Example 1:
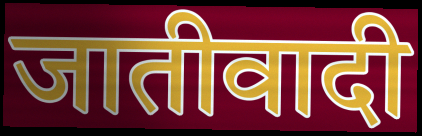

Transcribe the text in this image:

जातीवादी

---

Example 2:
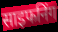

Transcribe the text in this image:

साइफनिंग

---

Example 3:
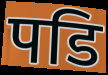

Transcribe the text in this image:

पडि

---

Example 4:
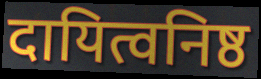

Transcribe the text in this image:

दायित्वनिष्ठ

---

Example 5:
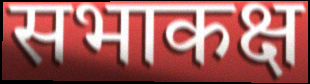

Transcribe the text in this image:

सभाकक्ष